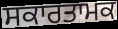
ਸਕਾਰਤਾਮਕ